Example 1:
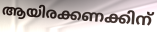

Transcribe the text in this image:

ആയിരക്കണക്കിന്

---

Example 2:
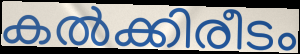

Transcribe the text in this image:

കൽക്കിരീടം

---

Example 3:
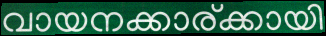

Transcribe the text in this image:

വായനക്കാര്ക്കായി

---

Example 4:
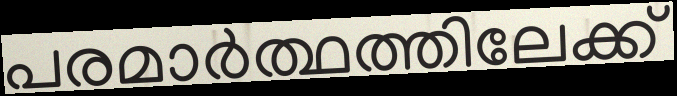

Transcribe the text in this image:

പരമാർത്ഥത്തിലേക്ക്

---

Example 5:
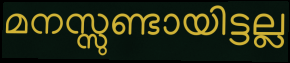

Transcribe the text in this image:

മനസ്സുണ്ടായിട്ടല്ല